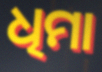
ଧିମା